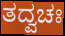
ತದ್ವಚಃ